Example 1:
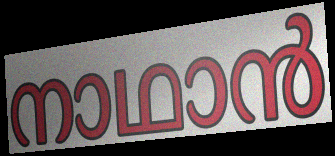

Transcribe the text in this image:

നാഥാൻ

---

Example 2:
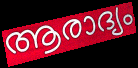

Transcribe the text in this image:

ആരാദ്യം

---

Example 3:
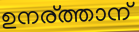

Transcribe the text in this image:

ഉനര്ത്താന്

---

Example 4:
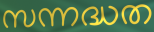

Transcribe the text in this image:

സന്നദ്ധത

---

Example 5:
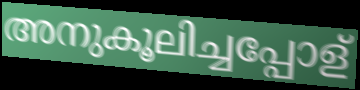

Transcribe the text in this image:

അനുകൂലിച്ചപ്പോള്